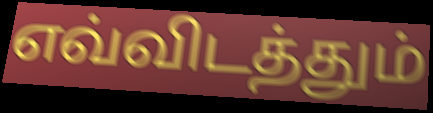
எவ்விடத்தும்